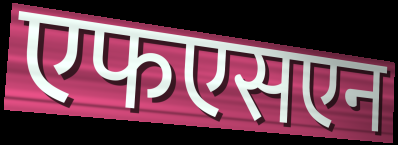
एफएसएन